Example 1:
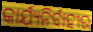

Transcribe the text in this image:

କାର୍ଯ୍ୟନିର୍ବାହୀର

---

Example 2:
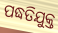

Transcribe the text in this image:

ପଦ୍ଧତିଯୁକ୍ତ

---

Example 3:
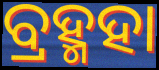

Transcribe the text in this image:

ବ୍ରହ୍ମହା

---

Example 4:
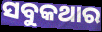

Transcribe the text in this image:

ସବୁକଥାର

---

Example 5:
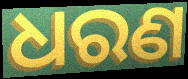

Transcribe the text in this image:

ଧରଣ